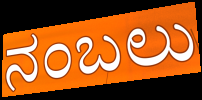
ನಂಬಲು